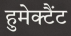
हुमेक्टैंट